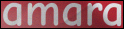
amara